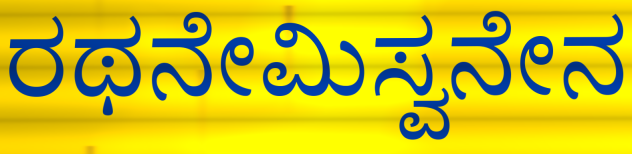
ರಥನೇಮಿಸ್ವನೇನ